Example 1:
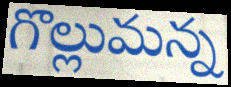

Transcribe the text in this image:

గొల్లుమన్న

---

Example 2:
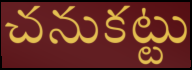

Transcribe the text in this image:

చనుకట్టు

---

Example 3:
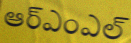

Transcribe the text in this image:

ఆర్ఎంఎల్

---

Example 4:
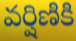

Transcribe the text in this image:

వర్షిణికి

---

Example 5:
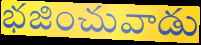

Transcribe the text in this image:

భజించువాడు